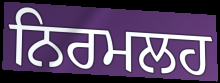
ਨਿਰਮਲਹ